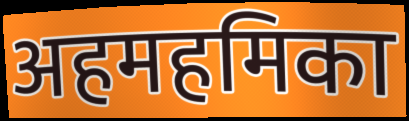
अहमहमिका